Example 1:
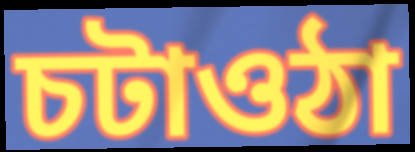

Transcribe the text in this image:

চটাওঠা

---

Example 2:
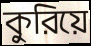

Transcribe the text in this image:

কুরিয়ে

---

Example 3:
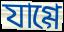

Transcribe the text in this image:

যাগ্গে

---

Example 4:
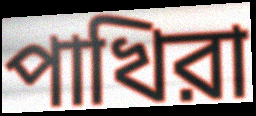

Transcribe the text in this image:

পাখিরা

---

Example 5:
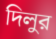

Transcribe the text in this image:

দিলুর